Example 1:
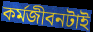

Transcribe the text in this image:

কর্মজীবনটাই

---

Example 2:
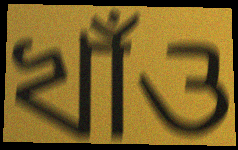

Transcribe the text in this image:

খাঁও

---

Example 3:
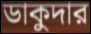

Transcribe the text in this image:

ডাকুদার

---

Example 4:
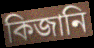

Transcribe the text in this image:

কিজানি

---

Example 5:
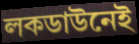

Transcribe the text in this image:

লকডাউনেই